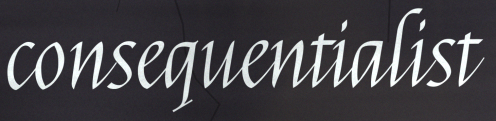
consequentialist